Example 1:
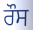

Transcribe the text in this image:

ਰੌਸ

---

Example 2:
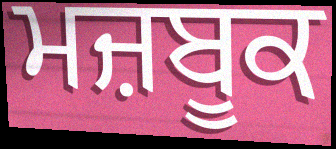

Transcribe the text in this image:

ਮਜ਼ਬੂਕ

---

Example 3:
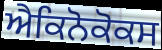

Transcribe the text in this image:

ਐਕਿਨੋਕੋਕਸ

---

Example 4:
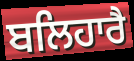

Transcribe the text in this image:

ਬਲਿਹਾਰੈ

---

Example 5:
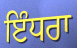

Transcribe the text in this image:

ਇੰਧਰਾ